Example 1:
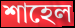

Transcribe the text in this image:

শাহেল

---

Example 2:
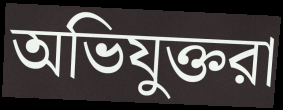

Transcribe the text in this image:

অভিযুক্তরা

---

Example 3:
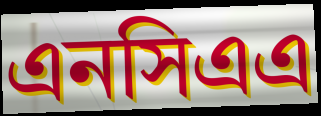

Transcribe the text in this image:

এনসিএএ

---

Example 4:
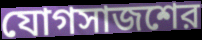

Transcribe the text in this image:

যোগসাজশের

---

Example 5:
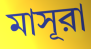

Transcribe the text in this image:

মাসূরা